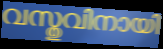
വസ്തുവിനായി